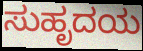
ಸುಹೃದಯ